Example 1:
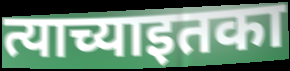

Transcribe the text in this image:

त्याच्याइतका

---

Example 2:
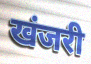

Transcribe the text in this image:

खंजरी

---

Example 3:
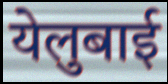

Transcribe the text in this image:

येलुबाई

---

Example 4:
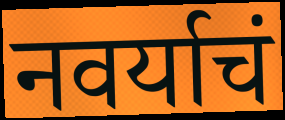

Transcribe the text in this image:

नवर्याचं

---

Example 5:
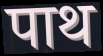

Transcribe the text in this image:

पाथ